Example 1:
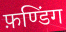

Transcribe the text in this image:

फ़ण्डिंग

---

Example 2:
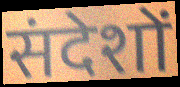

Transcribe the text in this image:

संदेशों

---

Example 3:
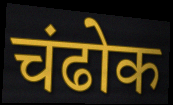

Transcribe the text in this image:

चंढोक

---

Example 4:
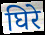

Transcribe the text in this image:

घिरे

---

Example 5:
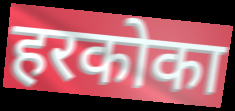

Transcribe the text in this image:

हरकोका